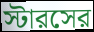
স্টারসের